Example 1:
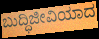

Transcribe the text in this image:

ಬುದ್ಧಿಜೀವಿಯಾದ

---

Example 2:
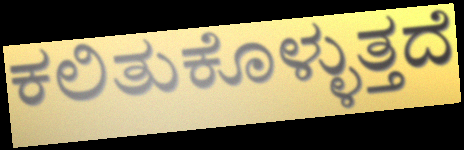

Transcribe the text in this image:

ಕಲಿತುಕೊಳ್ಳುತ್ತದೆ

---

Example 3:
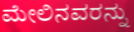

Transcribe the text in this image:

ಮೇಲಿನವರನ್ನು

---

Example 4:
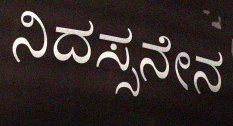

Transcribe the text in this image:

ನಿದಸ್ಸನೇನ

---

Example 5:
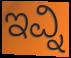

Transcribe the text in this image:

ಇವ್ನಿ